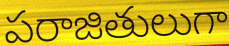
పరాజితులుగా